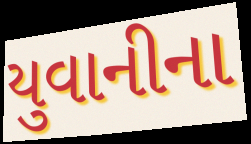
યુવાનીના